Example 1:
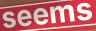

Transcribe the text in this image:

seems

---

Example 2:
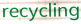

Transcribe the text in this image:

recycling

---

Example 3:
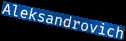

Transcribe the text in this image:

Aleksandrovich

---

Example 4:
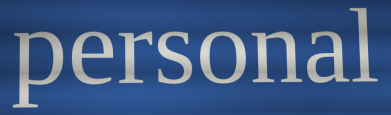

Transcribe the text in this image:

personal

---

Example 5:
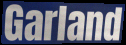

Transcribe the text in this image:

Garland